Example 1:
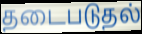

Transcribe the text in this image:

தடைபடுதல்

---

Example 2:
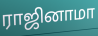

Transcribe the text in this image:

ராஜினாமா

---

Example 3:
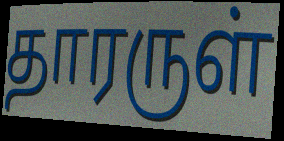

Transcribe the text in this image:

தாரருள்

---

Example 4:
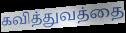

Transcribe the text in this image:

கவித்துவத்தை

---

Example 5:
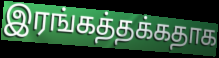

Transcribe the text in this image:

இரங்கத்தக்கதாக